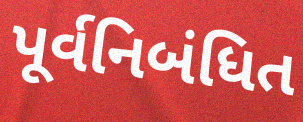
પૂર્વનિબંધિત